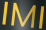
IMI